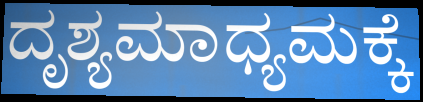
ದೃಶ್ಯಮಾಧ್ಯಮಕ್ಕೆ